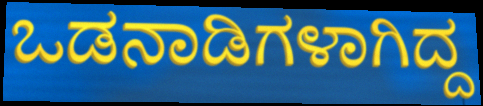
ಒಡನಾಡಿಗಳಾಗಿದ್ದ